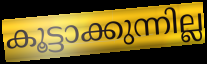
കൂട്ടാക്കുന്നില്ല